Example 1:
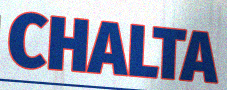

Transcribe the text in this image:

CHALTA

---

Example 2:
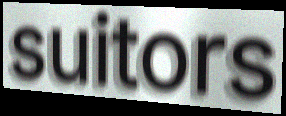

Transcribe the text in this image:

suitors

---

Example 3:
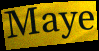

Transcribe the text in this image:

Maye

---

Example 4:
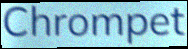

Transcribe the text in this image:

Chrompet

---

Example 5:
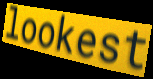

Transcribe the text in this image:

lookest